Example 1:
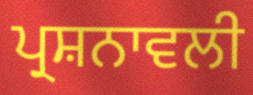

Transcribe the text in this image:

ਪ੍ਰਸ਼ਨਾਵਲੀ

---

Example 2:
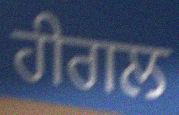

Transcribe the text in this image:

ਹੀਗਲ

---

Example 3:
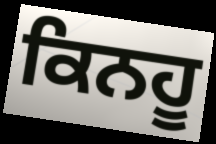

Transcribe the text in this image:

ਕਿਨਹੂ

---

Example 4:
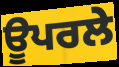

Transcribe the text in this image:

ਊਪਰਲੇ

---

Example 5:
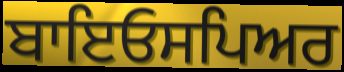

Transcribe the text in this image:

ਬਾਇਓਸਪਿਅਰ